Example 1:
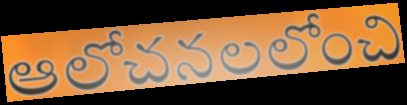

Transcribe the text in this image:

ఆలోచనలలోంచి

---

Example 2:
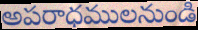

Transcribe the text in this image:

అపరాధములనుండి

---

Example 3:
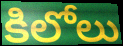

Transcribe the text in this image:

కిలోలు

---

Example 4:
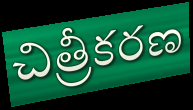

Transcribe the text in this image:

చిత్రీకరణ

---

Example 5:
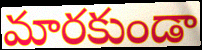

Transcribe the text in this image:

మారకుండా